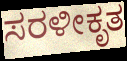
ಸರಳೀಕೃತ